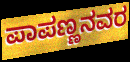
ಪಾಪಣ್ಣನವರ